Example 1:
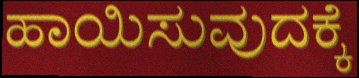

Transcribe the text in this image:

ಹಾಯಿಸುವುದಕ್ಕೆ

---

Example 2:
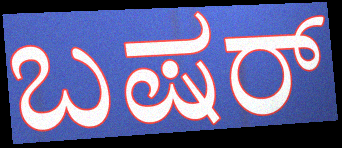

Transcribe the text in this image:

ಬಷರ್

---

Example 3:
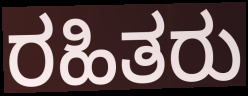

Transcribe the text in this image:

ರಹಿತರು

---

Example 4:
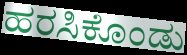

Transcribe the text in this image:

ಹರಸಿಕೊಂಡು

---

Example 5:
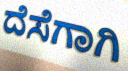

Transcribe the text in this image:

ದೆಸೆಗಾಗಿ